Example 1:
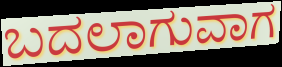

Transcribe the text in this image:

ಬದಲಾಗುವಾಗ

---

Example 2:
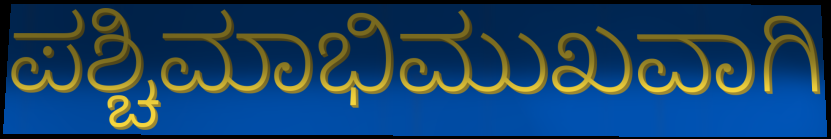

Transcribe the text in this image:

ಪಶ್ಚಿಮಾಭಿಮುಖವಾಗಿ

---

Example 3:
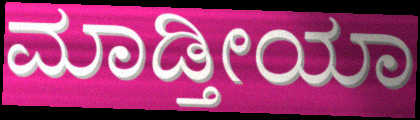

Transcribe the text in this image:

ಮಾಡ್ತೀಯಾ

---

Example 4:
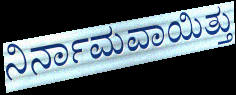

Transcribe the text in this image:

ನಿರ್ನಾಮವಾಯಿತ್ತು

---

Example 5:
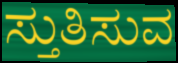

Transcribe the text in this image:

ಸ್ತುತಿಸುವ